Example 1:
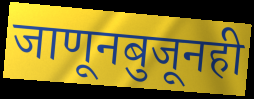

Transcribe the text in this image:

जाणूनबुजूनही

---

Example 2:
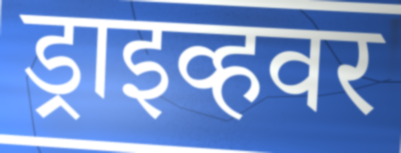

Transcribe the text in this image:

ड्राइव्हवर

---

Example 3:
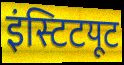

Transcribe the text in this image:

इंस्टिटयूट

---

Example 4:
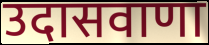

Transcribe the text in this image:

उदासवाणा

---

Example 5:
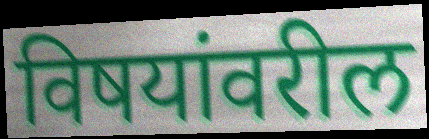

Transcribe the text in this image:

विषयांवरील